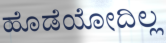
ಹೊಡೆಯೋದಿಲ್ಲ